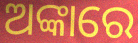
ଅଙ୍କାରେ